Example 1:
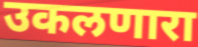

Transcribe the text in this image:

उकलणारा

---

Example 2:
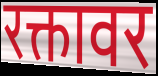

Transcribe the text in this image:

रक्तावर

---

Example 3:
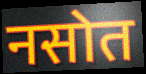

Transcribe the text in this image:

नसोत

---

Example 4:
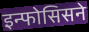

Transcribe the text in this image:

इन्फोसिसने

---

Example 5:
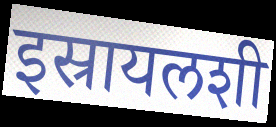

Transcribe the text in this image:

इस्रायलशी